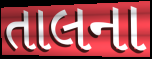
તાલના